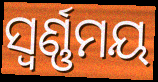
ସ୍ଵର୍ଣ୍ଣମୟ